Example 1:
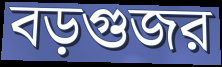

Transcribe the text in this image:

বড়গুজর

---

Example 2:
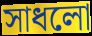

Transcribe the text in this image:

সাধলো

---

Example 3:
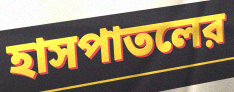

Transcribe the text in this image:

হাসপাতলের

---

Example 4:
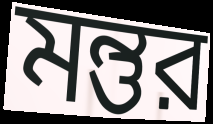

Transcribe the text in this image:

মন্তুর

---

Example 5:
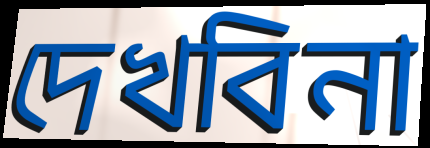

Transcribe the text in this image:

দেখবিনা